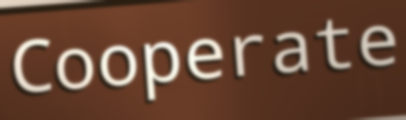
Cooperate